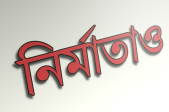
নির্মাতাও